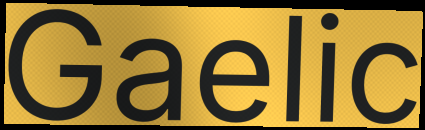
Gaelic